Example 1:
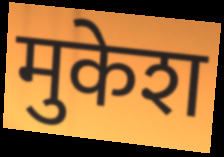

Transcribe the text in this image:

मुकेश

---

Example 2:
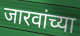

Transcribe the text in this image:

जारवांच्या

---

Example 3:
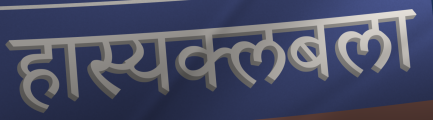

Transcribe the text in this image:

हास्यक्लबला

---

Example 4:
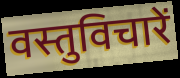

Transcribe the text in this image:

वस्तुविचारें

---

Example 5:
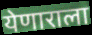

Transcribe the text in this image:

येणाराला